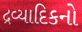
દ્રવ્યાદિકનો